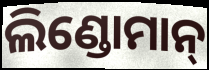
ଲିଣ୍ଡୋମାନ୍